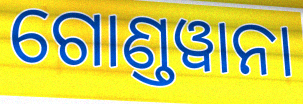
ଗୋଣ୍ଡୱାନା